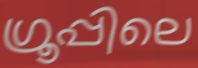
ഗ്രൂപ്പിലെ